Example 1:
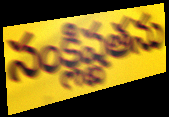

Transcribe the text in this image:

సంక్లిష్టతను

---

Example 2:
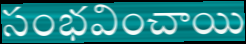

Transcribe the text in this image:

సంభవించాయి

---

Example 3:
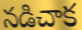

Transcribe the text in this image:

నడిచాక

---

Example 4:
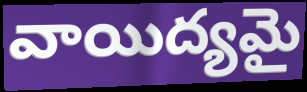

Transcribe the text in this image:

వాయిద్యమై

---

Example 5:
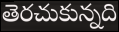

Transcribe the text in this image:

తెరచుకున్నది